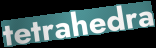
tetrahedra